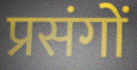
प्रसंगों